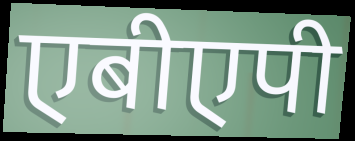
एबीएपी